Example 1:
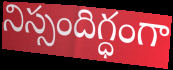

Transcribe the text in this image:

నిస్సందిగ్ధంగా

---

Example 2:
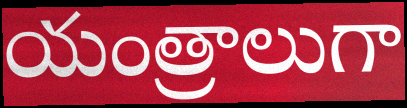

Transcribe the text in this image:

యంత్రాలుగా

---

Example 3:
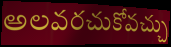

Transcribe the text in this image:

అలవరచుకోవచ్చు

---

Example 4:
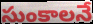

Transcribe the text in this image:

సుంకాలనే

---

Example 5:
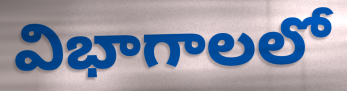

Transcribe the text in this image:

విభాగాలలో